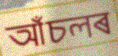
আঁচলৰ